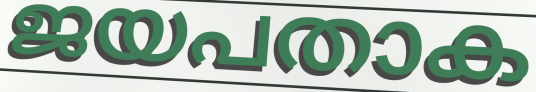
ജയപതാക